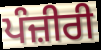
ਪੰਜ਼ੀਰੀ